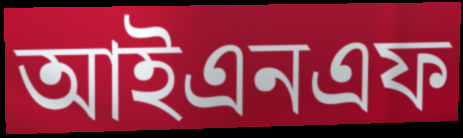
আইএনএফ